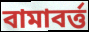
বামাবর্ত্ত